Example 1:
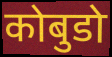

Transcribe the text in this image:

कोबुडो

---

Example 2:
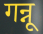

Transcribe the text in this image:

गन्नू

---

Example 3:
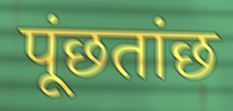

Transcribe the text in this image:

पूंछतांछ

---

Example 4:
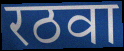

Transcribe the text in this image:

रठवा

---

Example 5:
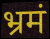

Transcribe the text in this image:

भ्रमं